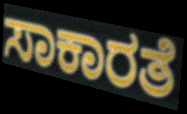
ಸಾಕಾರತೆ